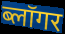
ब्लॉगर